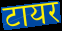
टायर